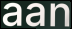
aan